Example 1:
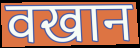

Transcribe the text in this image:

वखान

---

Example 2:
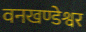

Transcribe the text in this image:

वनखण्डेश्वर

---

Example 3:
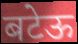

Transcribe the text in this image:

बटेऊ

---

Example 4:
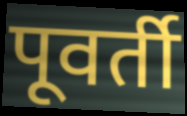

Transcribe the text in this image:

पूवर्ती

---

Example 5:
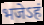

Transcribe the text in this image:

भजेऽहं